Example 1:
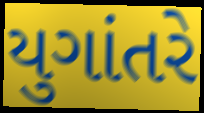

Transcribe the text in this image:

યુગાંતરે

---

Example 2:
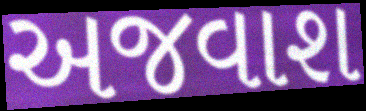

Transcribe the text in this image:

અજવાશ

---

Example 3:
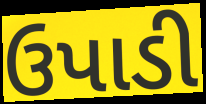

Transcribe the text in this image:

ઉપાડી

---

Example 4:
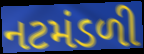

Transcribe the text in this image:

નટમંડળી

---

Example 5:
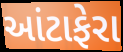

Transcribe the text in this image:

આંટાફેરા